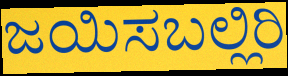
ಜಯಿಸಬಲ್ಲಿರಿ